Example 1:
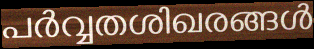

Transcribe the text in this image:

പർവ്വതശിഖരങ്ങൾ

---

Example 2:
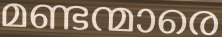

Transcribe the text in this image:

മണ്ടന്മാരെ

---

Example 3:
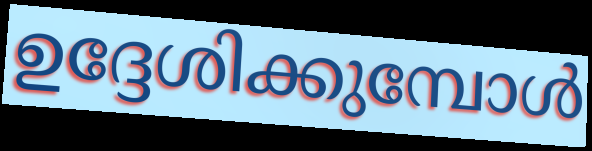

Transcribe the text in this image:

ഉദ്ദേശിക്കുമ്പോൾ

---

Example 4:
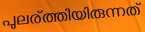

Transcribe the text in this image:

പുലര്ത്തിയിരുന്നത്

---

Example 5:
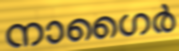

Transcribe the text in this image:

നാഗൈർ